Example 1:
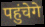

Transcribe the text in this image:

पहुंचेगे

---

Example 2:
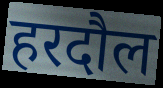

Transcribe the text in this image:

हरदौल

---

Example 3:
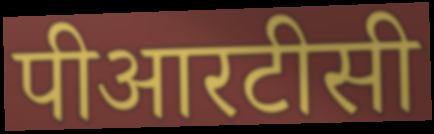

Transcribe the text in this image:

पीआरटीसी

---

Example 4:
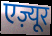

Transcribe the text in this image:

एज़्यूर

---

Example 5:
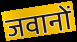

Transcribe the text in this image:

जवानों